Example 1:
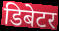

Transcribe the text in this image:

डिबेटर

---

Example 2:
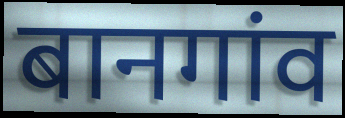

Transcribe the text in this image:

बानगांव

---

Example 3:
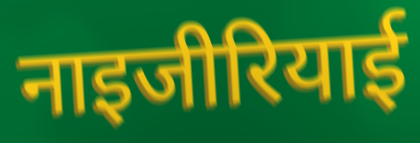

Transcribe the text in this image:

नाइजीरियाई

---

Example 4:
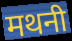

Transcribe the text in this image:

मथनी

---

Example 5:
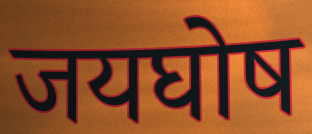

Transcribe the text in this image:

जयघोष